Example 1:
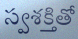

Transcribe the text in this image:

స్వశక్తితో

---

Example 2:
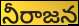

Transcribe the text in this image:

నీరాజన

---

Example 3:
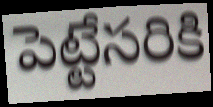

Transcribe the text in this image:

పెట్టేసరికి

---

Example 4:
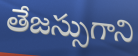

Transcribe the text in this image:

తేజస్సుగాని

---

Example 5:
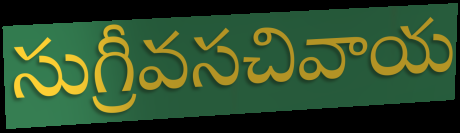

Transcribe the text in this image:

సుగ్రీవసచివాయ